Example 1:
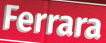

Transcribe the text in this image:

Ferrara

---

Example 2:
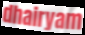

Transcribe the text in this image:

dhairyam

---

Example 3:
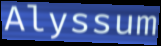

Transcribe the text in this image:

Alyssum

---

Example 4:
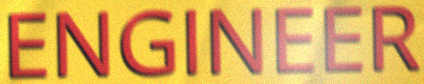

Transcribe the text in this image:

ENGINEER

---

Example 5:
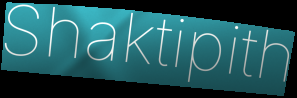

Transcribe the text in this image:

Shaktipith